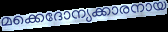
മക്കെദോന്യക്കാരനായ